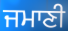
ਜਮਾਣੀ